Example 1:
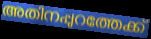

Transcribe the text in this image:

അതിനപ്പുറത്തേക്ക്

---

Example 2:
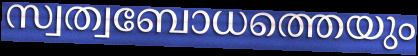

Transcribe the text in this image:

സ്വത്വബോധത്തെയും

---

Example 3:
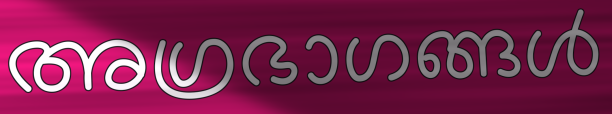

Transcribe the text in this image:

അഗ്രഭാഗങ്ങൾ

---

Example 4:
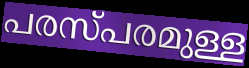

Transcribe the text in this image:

പരസ്പരമുള്ള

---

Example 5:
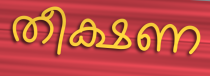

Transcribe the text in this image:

തീക്ഷണ